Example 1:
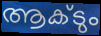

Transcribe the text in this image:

ആക്ടും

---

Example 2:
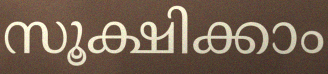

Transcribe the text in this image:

സൂക്ഷിക്കാം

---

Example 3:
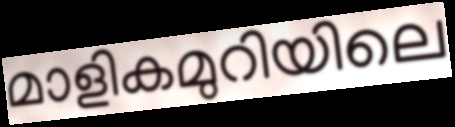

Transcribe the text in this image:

മാളികമുറിയിലെ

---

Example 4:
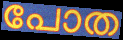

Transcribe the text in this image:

പോത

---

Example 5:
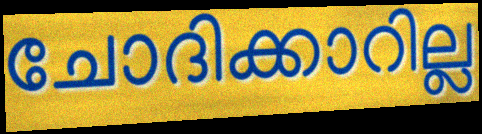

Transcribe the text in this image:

ചോദിക്കാറില്ല